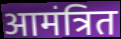
आमंत्रित